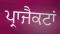
ਪ੍ਰਾਜੈਕਟਾਂ